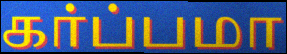
கர்ப்பமா